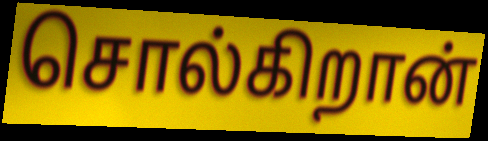
சொல்கிறான்